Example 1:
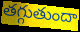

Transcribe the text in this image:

తగ్గుతుందా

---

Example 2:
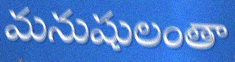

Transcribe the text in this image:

మనుషులంతా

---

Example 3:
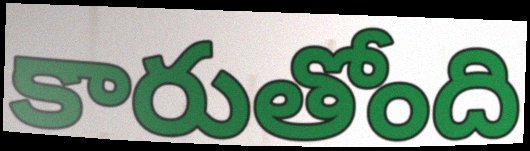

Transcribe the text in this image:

కారుతోంది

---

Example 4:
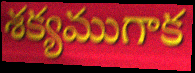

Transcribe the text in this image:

శక్యముగాక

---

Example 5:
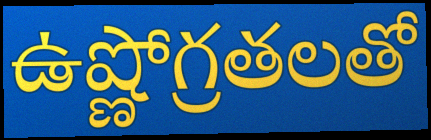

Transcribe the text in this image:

ఉష్ణోగ్రతలతో